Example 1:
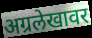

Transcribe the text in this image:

अग्रलेखावर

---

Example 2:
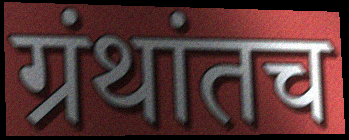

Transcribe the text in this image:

ग्रंथांतच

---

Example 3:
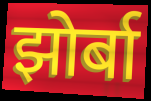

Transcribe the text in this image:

झोर्बा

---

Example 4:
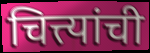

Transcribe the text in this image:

चित्त्यांची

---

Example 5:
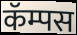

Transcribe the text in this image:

कॅम्पस